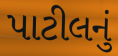
પાટીલનું